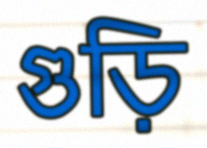
গুড়ি